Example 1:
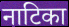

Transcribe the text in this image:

नाटिका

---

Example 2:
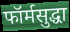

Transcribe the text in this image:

फॉर्मसुद्धा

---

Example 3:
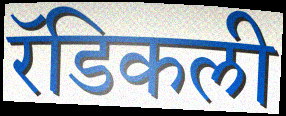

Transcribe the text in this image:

रॅडिकली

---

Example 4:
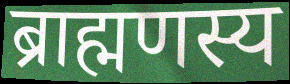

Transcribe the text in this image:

ब्राह्मणस्य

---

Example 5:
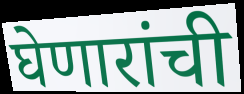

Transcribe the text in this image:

घेणारांची